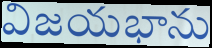
విజయభాను